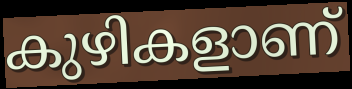
കുഴികളാണ്